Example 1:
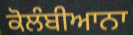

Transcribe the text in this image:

ਕੋਲੰਬੀਆਨਾ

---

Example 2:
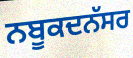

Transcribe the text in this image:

ਨਬੂਕਦਨੱਸਰ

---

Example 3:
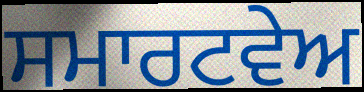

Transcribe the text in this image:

ਸਮਾਰਟਵੇਅ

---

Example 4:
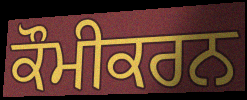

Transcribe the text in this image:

ਕੌਮੀਕਰਨ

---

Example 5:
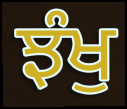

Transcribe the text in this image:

ਝੰਖੁ